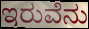
ಇರುವೆನು